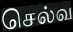
செல்வ